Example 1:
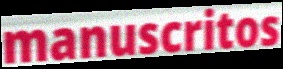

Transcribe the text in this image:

manuscritos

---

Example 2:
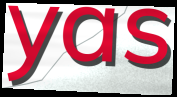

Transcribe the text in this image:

yas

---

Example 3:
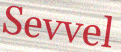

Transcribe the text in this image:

Sevvel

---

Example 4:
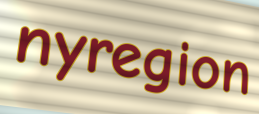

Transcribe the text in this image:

nyregion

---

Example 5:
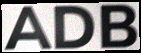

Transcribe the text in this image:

ADB